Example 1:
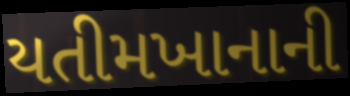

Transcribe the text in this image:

યતીમખાનાની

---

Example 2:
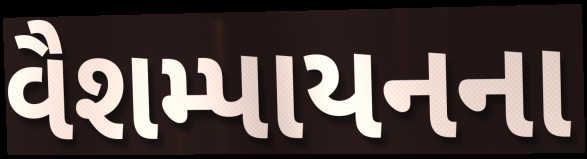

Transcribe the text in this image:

વૈશમ્પાયનના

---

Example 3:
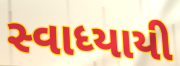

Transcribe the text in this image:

સ્વાધ્યાયી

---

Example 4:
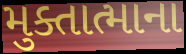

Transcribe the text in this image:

મુક્તાત્માના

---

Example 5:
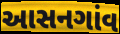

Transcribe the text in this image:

આસનગાંવ